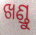
ଖଣ୍ଡୁ